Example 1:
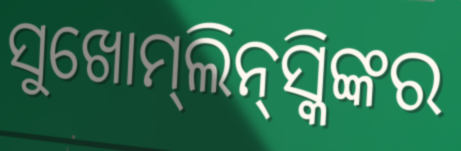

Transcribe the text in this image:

ସୁଖୋମ୍‍ଲିନ୍‍ସ୍କିଙ୍କର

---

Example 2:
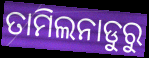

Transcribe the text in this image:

ତାମିଲନାଡୁରୁ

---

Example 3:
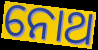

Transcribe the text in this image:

ନୋଥ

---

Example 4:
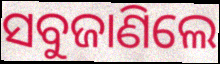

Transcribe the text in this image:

ସବୁଜାଣିଲେ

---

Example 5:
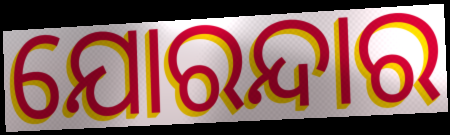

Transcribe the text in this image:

ଯୋରନ୍ଦାର